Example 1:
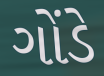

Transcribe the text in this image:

ગોંડે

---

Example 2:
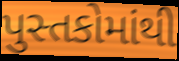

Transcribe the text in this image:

પુસ્તકોમાંથી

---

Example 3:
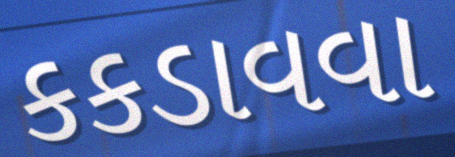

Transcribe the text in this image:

કકડાવવા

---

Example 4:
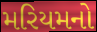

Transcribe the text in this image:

મરિયમનો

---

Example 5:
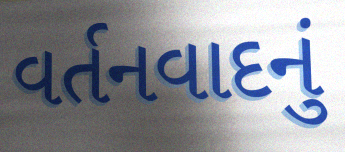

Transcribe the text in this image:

વર્તનવાદનું